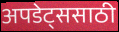
अपडेट्ससाठी